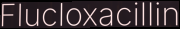
Flucloxacillin